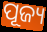
ପୂଜ୍ୟ